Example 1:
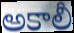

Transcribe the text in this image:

అకాలీ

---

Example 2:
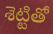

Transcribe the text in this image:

శెట్టితో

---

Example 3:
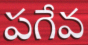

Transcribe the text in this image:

పగేవ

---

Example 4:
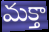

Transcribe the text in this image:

మక్తా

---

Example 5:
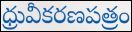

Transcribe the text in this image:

ధ్రువీకరణపత్రం